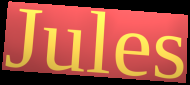
Jules